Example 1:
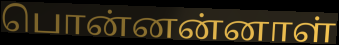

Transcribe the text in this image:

பொன்னன்னாள்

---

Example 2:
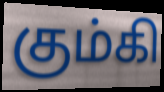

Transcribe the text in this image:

கும்கி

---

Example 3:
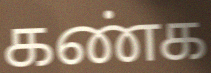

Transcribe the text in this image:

கண்க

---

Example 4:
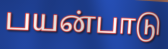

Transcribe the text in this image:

பயன்பாடு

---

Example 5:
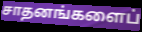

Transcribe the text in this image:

சாதனங்களைப்